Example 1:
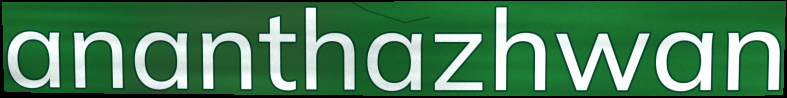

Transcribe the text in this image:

ananthazhwan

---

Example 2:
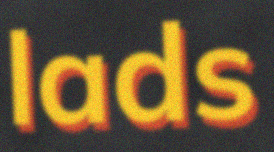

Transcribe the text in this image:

lads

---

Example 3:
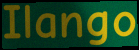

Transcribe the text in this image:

Ilango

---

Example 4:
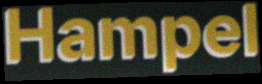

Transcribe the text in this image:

Hampel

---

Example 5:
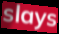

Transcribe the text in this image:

slays